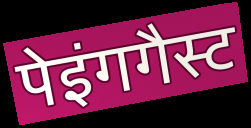
पेइंगगैस्ट